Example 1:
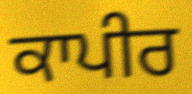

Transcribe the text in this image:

ਕਾਪੀਰ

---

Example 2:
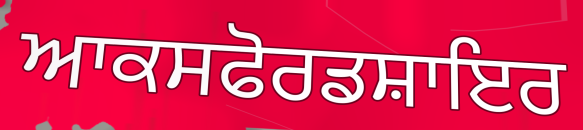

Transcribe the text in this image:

ਆਕਸਫੋਰਡਸ਼ਾਇਰ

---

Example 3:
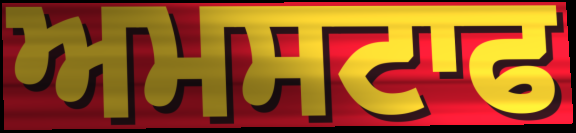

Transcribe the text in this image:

ਅਮਸਟਾਫ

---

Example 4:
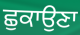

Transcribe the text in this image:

ਛੁਕਾਉਣਾ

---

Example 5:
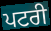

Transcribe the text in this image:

ਪਟਰੀ